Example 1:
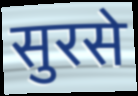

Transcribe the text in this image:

सुरसे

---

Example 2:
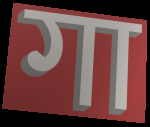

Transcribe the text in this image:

गा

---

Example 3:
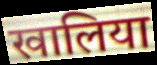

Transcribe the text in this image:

खालिया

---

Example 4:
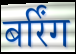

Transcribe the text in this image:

बर्रिंग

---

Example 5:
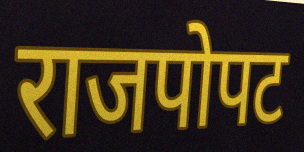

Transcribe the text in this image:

राजपोपट